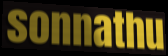
sonnathu